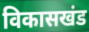
विकासखंड